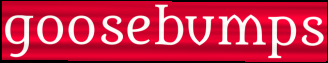
goosebumps